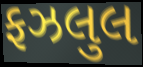
ફઝલુલ